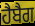
ਹੈਬੈਗ